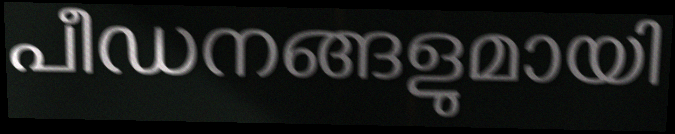
പീഡനങ്ങളുമായി